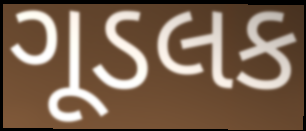
ગૂડલક